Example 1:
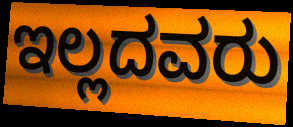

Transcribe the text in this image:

ಇಲ್ಲದವರು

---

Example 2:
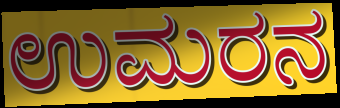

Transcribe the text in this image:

ಉಮರನ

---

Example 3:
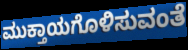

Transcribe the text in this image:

ಮುಕ್ತಾಯಗೊಳಿಸುವಂತೆ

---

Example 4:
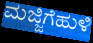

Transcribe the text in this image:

ಮಜ್ಜಿಗೆಹುಳಿ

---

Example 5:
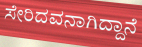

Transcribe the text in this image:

ಸೇರಿದವನಾಗಿದ್ದಾನೆ